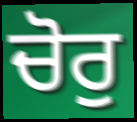
ਚੋਰੁ